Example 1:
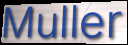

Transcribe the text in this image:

Muller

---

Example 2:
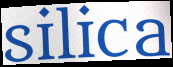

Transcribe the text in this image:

silica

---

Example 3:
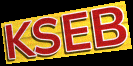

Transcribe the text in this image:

KSEB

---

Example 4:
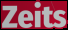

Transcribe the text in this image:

Zeits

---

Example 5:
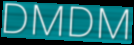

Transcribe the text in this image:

DMDM